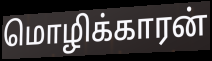
மொழிக்காரன்